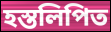
হস্তলিপিত